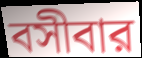
বসীবার